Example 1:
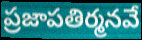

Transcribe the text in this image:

ప్రజాపతిర్మనవే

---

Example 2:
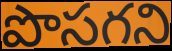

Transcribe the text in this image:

పొసగని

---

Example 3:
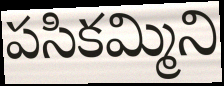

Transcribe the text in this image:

పసికమ్మిని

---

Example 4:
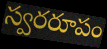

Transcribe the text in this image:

స్వరరూపం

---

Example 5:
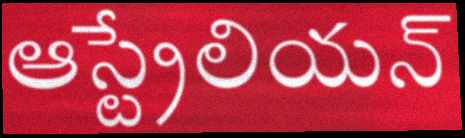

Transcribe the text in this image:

ఆస్ట్రేలియన్